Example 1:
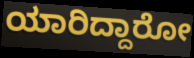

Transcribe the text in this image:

ಯಾರಿದ್ದಾರೋ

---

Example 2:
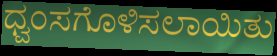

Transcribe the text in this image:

ಧ್ವಂಸಗೊಳಿಸಲಾಯಿತು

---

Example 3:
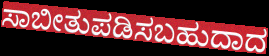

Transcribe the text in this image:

ಸಾಬೀತುಪಡಿಸಬಹುದಾದ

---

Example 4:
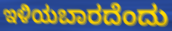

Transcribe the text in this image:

ಇಳಿಯಬಾರದೆಂದು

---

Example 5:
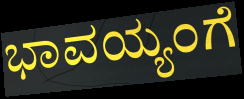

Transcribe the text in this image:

ಭಾವಯ್ಯಂಗೆ